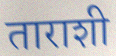
ताराशी